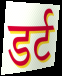
डर्ट